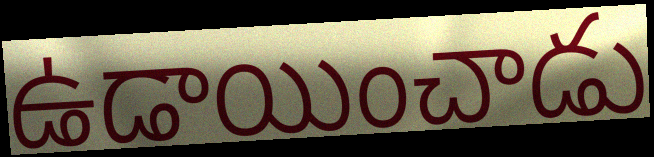
ఉడాయించాడు